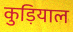
कुड़ियाल